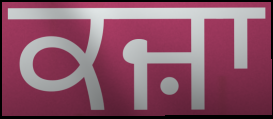
ਕਜ਼ਾ